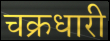
चक्रधारी